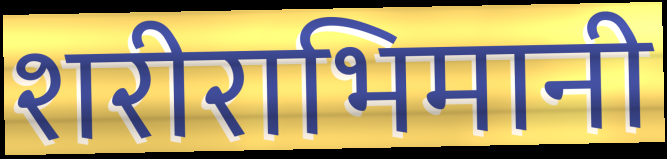
शरीराभिमानी